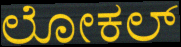
ಲೋಕಲ್